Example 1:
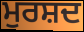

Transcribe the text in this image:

ਮੁਰਸ਼ਦ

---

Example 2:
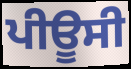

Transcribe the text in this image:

ਪੀਊਸੀ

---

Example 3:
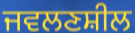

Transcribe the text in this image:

ਜਵਲਣਸ਼ੀਲ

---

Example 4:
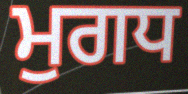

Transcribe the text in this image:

ਮੁਗਧ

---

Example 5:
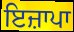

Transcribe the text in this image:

ਇਜ਼ਾਪਾ